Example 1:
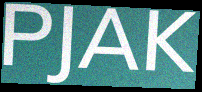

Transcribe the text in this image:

PJAK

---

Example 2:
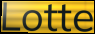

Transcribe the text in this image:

Lotte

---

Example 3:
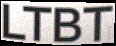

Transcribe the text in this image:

LTBT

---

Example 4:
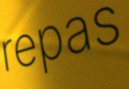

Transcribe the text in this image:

repas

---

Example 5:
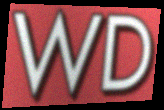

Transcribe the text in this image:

WD